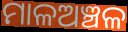
ମାଳଅଞ୍ଚଳ